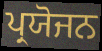
ਪ੍ਰਯੋਜਨ